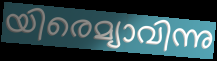
യിരെമ്യാവിന്നു